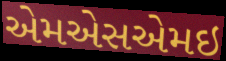
એમએસએમઇ